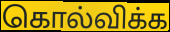
கொல்விக்க